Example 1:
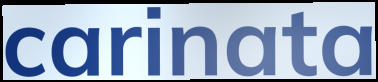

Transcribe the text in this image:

carinata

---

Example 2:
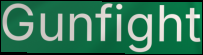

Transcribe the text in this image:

Gunfight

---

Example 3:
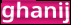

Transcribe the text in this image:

ghanij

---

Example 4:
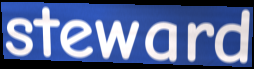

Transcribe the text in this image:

steward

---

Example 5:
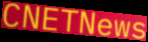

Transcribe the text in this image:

CNETNews